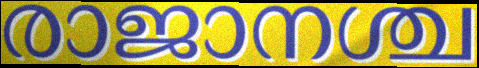
രാജാനശ്ച